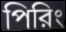
পিরিং